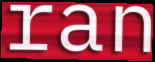
ran